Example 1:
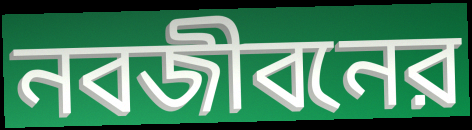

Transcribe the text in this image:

নবজীবনের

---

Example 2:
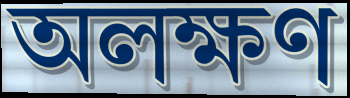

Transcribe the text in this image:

অলক্ষণ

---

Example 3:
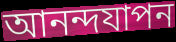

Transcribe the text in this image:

আনন্দযাপন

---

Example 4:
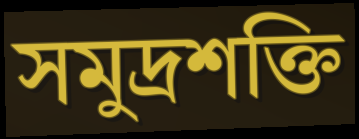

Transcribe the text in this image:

সমুদ্রশক্তি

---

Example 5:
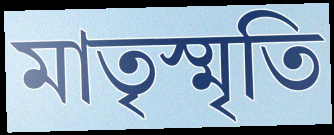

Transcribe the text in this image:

মাতৃস্মৃতি